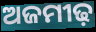
ଅଜମୀଢ଼